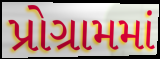
પ્રોગ્રામમાં